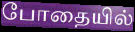
போதையில்